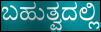
ಬಹುತ್ವದಲ್ಲಿ